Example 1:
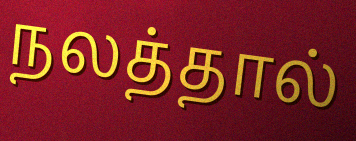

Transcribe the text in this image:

நலத்தால்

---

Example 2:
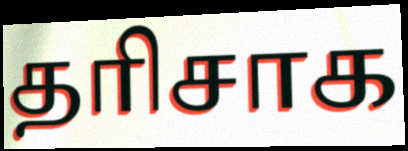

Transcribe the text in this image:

தரிசாக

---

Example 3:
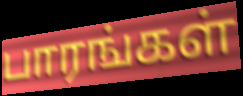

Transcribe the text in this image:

பாரங்கள்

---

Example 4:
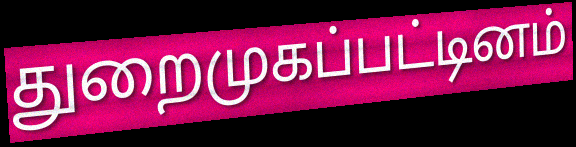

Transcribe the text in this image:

துறைமுகப்பட்டினம்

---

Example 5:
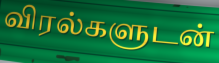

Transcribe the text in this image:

விரல்களுடன்